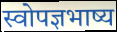
स्वोपज्ञभाष्य